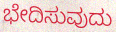
ಭೇದಿಸುವುದು